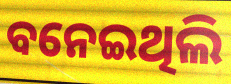
ବନେଇଥିଲି